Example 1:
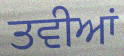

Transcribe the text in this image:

ਤਵੀਆਂ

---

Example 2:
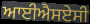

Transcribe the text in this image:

ਆਈਐਸਏਸੀ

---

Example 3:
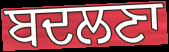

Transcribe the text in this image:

ਬਦਲਣਾ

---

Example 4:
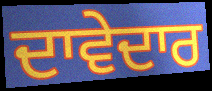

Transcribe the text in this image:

ਦਾਵੇਦਾਰ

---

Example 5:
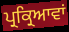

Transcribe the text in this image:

ਪ੍ਰਕ੍ਰਿਆਵਾਂ